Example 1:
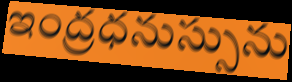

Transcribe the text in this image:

ఇంద్రధనుస్సును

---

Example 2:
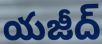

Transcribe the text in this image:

యజీద్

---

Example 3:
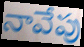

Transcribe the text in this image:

నావేపు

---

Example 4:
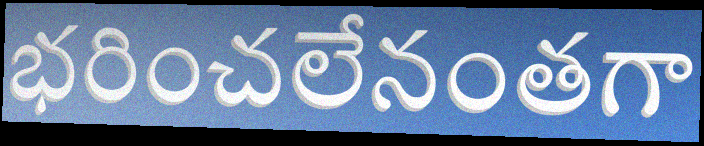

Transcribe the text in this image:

భరించలేనంతగా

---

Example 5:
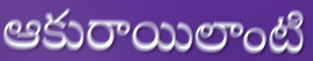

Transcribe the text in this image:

ఆకురాయిలాంటి